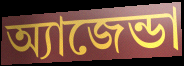
অ্যাজেন্ডা